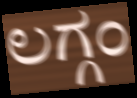
ಲಗ್ಗಂ